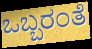
ಒಬ್ಬರಂತೆ